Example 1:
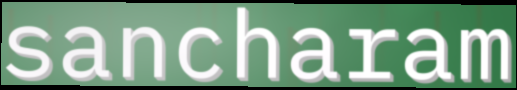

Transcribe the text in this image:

sancharam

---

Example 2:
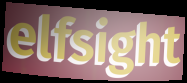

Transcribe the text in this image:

elfsight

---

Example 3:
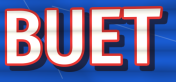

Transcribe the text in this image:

BUET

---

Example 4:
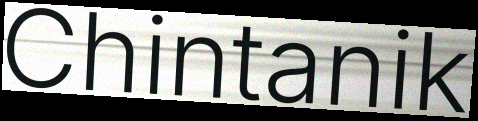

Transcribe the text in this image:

Chintanik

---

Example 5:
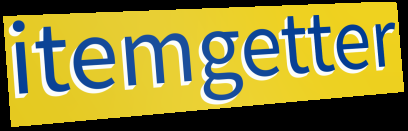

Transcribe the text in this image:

itemgetter